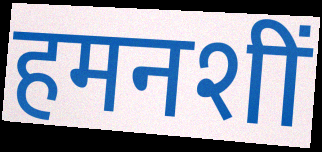
हमनशीं